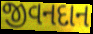
જીવનદાન